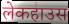
लेकहाउस